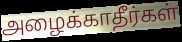
அழைக்காதீர்கள்